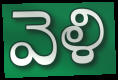
వెళి